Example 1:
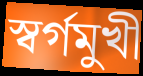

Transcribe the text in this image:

স্বর্গমুখী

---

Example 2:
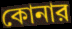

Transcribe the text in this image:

কোনার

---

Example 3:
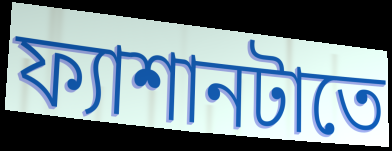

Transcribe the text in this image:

ফ্যাশানটাতে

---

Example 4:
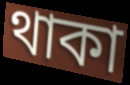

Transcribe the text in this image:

থাকা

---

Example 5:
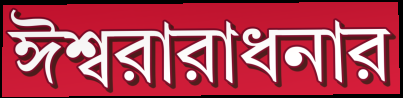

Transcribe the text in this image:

ঈশ্বরারাধনার